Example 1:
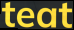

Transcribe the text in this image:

teat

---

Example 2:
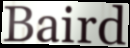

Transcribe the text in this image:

Baird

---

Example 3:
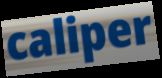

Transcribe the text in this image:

caliper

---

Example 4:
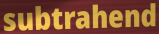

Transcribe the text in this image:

subtrahend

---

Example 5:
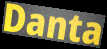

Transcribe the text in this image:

Danta